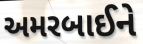
અમરબાઈને